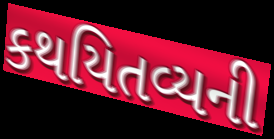
કથયિતવ્યની